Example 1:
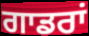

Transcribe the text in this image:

ਗਾਡਰਾਂ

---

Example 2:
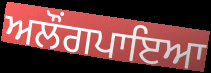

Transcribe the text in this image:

ਅਲੌਂਗਪਾਇਆ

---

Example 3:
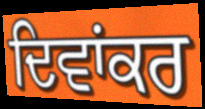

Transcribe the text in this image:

ਦਿਵਾਂਕਰ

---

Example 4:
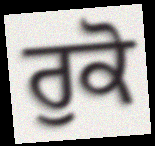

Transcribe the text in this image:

ਰੁਕੋ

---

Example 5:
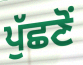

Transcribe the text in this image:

ਪੁੱਛਣੋਂ